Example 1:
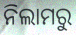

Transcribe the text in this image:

ନିଲାମରୁ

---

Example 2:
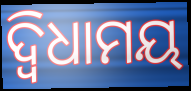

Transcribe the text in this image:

ଦ୍ୱିଧାମୟ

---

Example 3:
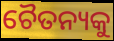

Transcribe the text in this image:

ଚୈତନ୍ୟକୁ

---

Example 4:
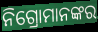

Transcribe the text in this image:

ନିଗ୍ରୋମାନଙ୍କର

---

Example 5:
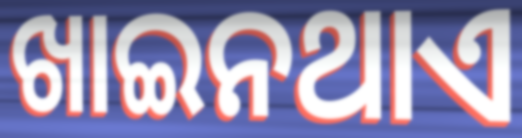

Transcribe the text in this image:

ଖାଇନଥାଏ